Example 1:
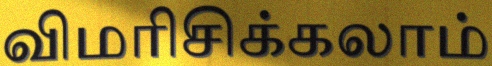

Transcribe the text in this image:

விமரிசிக்கலாம்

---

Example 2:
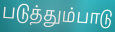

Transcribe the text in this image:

படுத்தும்பாடு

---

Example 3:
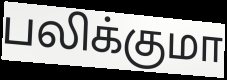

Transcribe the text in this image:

பலிக்குமா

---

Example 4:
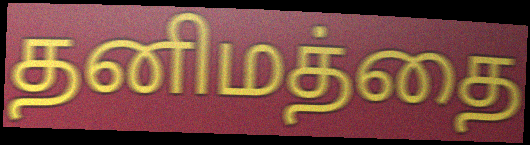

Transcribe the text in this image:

தனிமத்தை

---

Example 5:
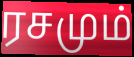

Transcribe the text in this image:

ரசமும்